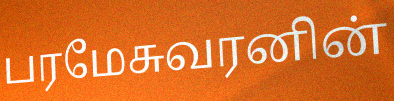
பரமேசுவரனின்